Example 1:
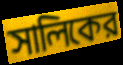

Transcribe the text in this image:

সালিকের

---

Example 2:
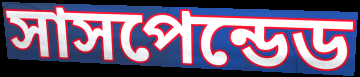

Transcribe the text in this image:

সাসপেন্ডেড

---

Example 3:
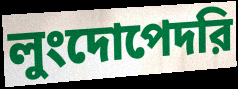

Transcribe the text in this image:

লুংদোপেদরি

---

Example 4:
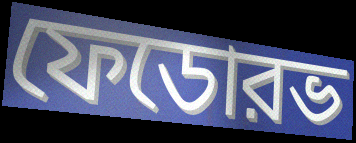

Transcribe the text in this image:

ফেডোরভ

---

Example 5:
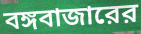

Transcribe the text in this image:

বঙ্গবাজারের